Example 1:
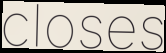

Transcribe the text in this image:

closes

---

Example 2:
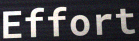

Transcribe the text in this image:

Effort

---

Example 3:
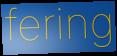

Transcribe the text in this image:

fering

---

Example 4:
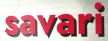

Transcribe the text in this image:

savari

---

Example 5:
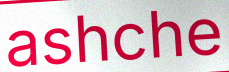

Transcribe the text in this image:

ashche